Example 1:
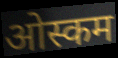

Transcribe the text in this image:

ओस्कम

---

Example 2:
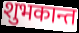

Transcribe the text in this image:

शुभकान्त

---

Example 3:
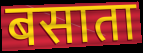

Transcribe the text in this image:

बसाता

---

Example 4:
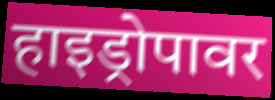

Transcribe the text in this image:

हाइड्रोपावर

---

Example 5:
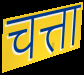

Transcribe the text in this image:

चत्ता